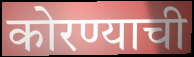
कोरण्याची